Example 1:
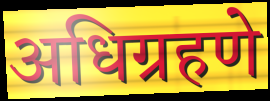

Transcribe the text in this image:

अधिग्रहणे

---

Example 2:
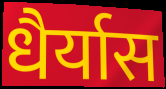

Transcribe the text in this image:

धैर्यास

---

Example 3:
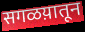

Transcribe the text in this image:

सगळय़ातून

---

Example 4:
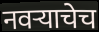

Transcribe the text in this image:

नवऱ्याचेच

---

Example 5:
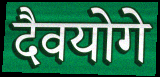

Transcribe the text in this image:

दैवयोगे